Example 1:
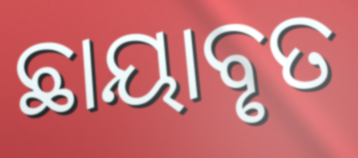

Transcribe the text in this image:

ଛାୟାବୃତ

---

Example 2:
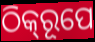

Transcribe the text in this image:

ଠିକ୍‌ରୂପେ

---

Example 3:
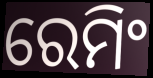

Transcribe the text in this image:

ରେମିଂ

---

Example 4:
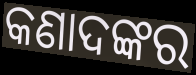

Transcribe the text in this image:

କଣାଦଙ୍କର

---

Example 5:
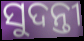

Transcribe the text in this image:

ସୁଦନ୍ତୀ